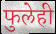
फुलेही